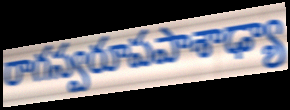
రాగస్వరూపపాశాఢ్యా